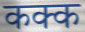
कक्क